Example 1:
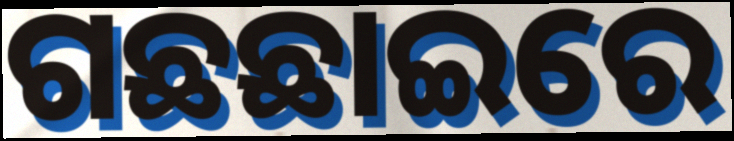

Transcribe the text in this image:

ଗଛଛାଇରେ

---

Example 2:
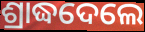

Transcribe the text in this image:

ଶ୍ରାଦ୍ଧଦେଲେ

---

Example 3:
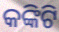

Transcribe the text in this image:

କଙ୍କିଟି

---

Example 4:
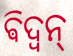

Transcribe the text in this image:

ଵିଦ୍ଵନ୍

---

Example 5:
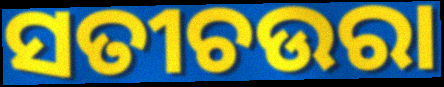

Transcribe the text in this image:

ସତୀଚଉରା